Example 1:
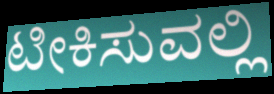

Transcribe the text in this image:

ಟೀಕಿಸುವಲ್ಲಿ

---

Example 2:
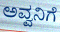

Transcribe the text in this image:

ಅವ್ವನಿಗೆ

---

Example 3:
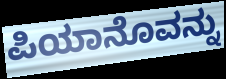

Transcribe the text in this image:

ಪಿಯಾನೊವನ್ನು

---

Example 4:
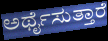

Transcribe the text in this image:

ಅರ್ಥೈಸುತ್ತಾರೆ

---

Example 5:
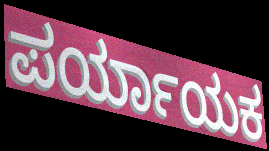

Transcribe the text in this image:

ಪರ್ಯಾಯಕ